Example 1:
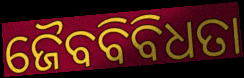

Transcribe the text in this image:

ଜୈବବିବିଧତା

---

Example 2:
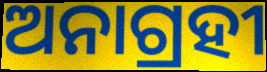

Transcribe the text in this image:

ଅନାଗ୍ରହୀ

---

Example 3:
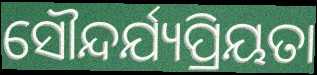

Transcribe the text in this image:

ସୌନ୍ଦର୍ଯ୍ୟପ୍ରିୟତା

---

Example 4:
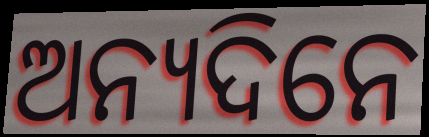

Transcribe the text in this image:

ଅନ୍ୟଦିନେ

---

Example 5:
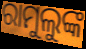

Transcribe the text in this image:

ରାମୁଲୁଙ୍କ